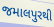
જમાલપુરથી